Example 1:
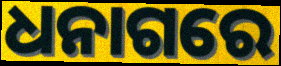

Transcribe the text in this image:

ଧନାଗରେ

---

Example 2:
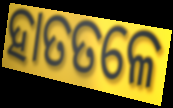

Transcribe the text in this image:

ହାତତଳେ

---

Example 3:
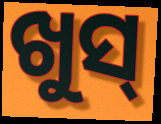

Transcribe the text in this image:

ଖୁସ୍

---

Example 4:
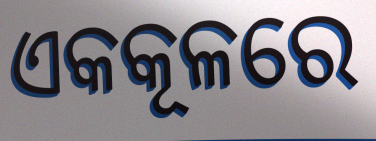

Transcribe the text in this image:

ଏକକୂଳରେ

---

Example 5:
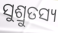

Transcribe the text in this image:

ସୁଶ୍ରୁତସ୍ୟ